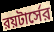
রয়টার্সের